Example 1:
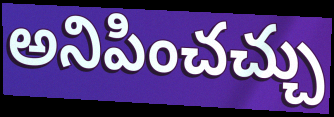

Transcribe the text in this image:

అనిపించచ్చు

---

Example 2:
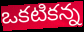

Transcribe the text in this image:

ఒకటికన్న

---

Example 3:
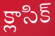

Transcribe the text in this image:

క్లాసిక్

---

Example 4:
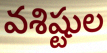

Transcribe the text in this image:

వశిష్టుల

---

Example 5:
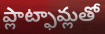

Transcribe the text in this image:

ప్లాట్ఫామ్లతో